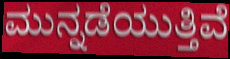
ಮುನ್ನಡೆಯುತ್ತಿವೆ